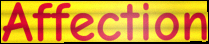
Affection